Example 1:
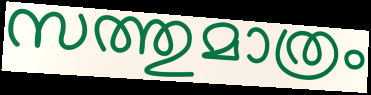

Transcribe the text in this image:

സത്തുമാത്രം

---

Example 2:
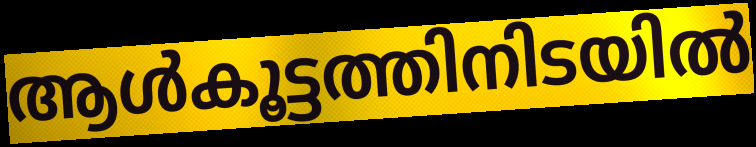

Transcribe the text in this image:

ആൾകൂട്ടത്തിനിടയിൽ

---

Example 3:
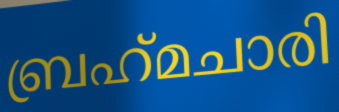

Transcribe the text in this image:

ബ്രഹ്‌മചാരി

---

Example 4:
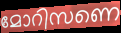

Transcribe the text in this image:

മോറിസണെ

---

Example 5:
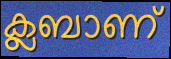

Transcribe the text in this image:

ക്ലബാണ്